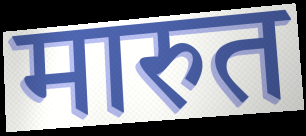
मारुत